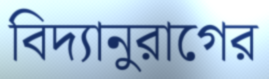
বিদ্যানুরাগের